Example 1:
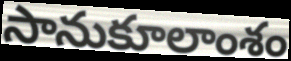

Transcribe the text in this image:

సానుకూలాంశం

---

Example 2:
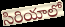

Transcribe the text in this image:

సిరియాలో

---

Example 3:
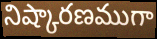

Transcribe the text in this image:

నిష్కారణముగా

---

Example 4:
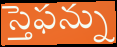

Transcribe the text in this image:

స్తెఫన్ను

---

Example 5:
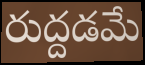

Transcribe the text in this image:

రుద్దడమే